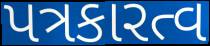
પત્રકારત્વ